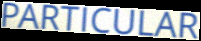
PARTICULAR